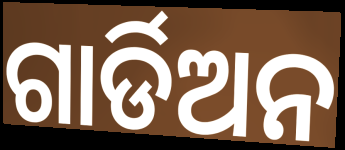
ଗାର୍ଡିଅନ